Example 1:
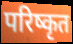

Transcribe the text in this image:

परिष्कृत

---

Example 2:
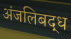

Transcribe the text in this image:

अंजलिबद्ध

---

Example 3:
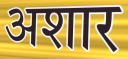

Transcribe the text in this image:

अशार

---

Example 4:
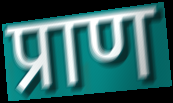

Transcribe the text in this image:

प्राण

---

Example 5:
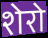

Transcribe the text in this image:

शेरो